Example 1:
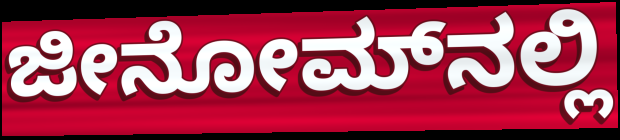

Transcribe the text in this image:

ಜೀನೋಮ್‌ನಲ್ಲಿ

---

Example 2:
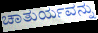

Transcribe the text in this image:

ಚಾತುರ್ಯವನ್ನು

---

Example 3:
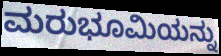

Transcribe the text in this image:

ಮರುಭೂಮಿಯನ್ನು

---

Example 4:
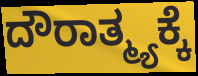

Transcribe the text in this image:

ದೌರಾತ್ಮ್ಯಕ್ಕೆ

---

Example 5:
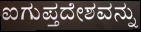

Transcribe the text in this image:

ಐಗುಪ್ತದೇಶವನ್ನು